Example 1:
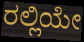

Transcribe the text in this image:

ರಲ್ಲಿಯೇ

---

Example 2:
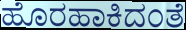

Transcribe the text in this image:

ಹೊರಹಾಕಿದಂತೆ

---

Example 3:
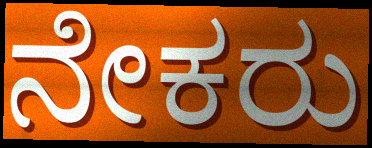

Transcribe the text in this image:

ನೇಕರು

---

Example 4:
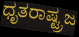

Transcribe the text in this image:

ಧೃತರಾಷ್ಟ್ರಜ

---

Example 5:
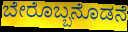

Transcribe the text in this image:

ಬೇರೊಬ್ಬನೊಡನೆ